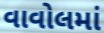
વાવોલમાં